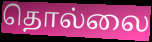
தொல்லை